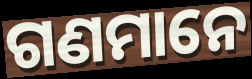
ଗଣମାନେ